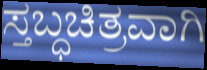
ಸ್ತಬ್ಧಚಿತ್ರವಾಗಿ